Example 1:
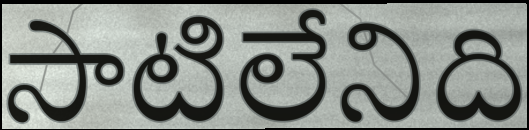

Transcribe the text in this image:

సాటిలేనిది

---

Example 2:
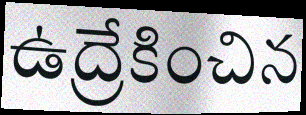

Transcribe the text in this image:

ఉద్రేకించిన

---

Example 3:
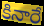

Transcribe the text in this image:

కినారే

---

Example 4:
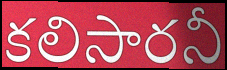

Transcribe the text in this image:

కలిసారనీ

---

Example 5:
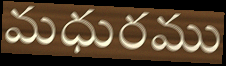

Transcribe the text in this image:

మధురము